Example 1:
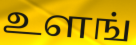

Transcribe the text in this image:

உளங்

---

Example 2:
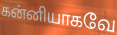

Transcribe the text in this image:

கன்னியாகவே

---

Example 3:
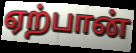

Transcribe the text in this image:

ஏற்பான்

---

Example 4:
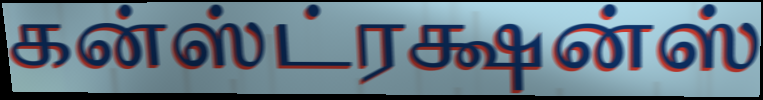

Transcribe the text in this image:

கன்ஸ்ட்ரக்ஷன்ஸ்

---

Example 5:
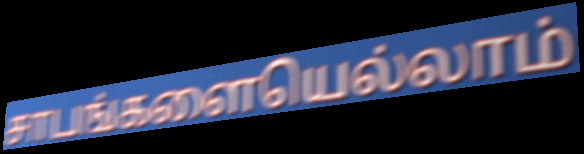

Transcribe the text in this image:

சாபங்களையெல்லாம்